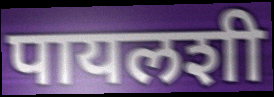
पायलशी